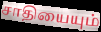
சாதியையும்